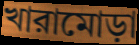
খারামোড়া